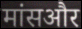
मांसऔर